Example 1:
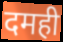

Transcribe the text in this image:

दमही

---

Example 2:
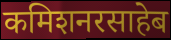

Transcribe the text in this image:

कमिशनरसाहेब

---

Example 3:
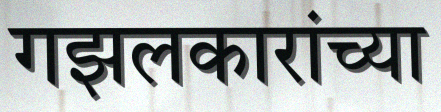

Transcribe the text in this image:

गझलकारांच्या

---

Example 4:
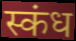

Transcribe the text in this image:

स्कंध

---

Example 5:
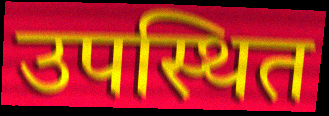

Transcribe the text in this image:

उपस्थित